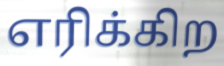
எரிக்கிற